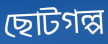
ছোটগল্প